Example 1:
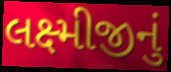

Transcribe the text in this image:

લક્ષ્મીજીનું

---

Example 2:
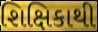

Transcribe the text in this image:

શિક્ષિકાથી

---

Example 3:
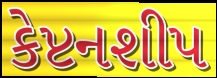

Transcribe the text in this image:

કેપ્ટનશીપ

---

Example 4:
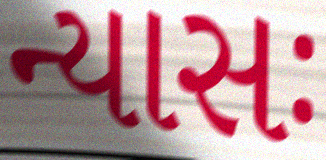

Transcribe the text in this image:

ન્યાસઃ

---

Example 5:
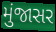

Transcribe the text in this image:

મુંજાસર